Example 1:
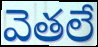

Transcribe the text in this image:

వెతలే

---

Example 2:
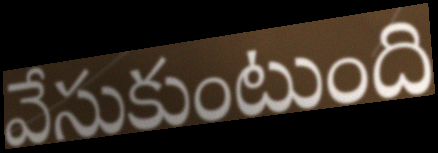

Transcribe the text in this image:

వేసుకుంటుంది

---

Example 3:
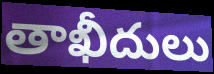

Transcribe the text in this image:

తాఖీదులు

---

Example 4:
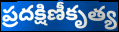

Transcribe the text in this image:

ప్రదక్షిణీకృత్య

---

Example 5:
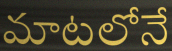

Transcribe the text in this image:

మాటలోనే